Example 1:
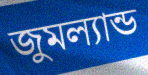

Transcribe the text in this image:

জুমল্যান্ড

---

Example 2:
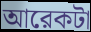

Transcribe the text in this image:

আরেকটা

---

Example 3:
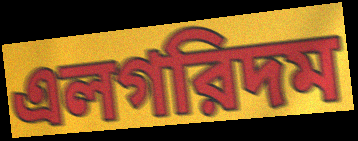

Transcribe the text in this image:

এলগরিদম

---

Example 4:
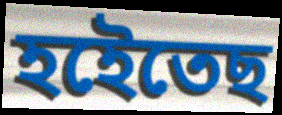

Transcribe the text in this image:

হইেতেছ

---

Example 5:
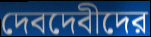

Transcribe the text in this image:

দেবদেবীদের